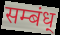
सम्बंध्